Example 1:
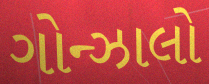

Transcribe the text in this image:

ગોન્ઝાલો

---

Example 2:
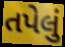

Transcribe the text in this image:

તપેલું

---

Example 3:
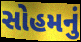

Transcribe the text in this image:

સોહમનું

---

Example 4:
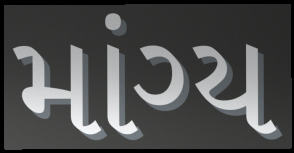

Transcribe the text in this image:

માંગ્ય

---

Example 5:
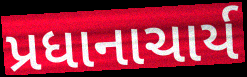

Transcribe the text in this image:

પ્રધાનાચાર્ય